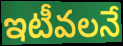
ఇటీవలనే